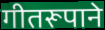
गीतरूपाने